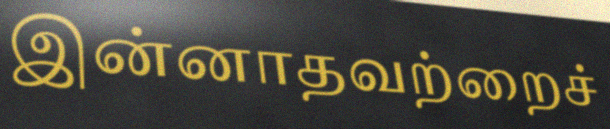
இன்னாதவற்றைச்